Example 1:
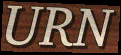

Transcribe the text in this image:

URN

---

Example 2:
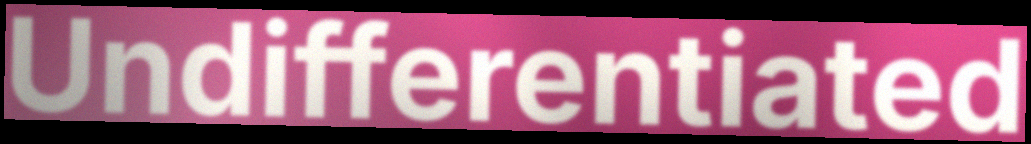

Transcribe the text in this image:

Undifferentiated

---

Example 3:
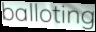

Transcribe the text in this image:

balloting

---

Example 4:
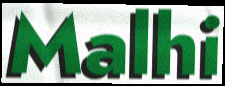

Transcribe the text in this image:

Malhi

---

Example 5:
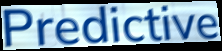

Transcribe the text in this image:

Predictive